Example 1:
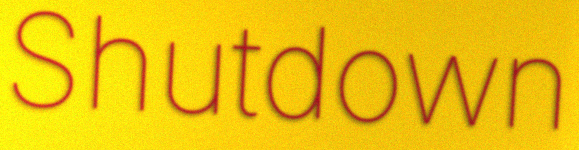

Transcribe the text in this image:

Shutdown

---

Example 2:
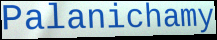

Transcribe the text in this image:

Palanichamy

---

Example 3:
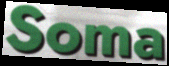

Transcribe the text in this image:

Soma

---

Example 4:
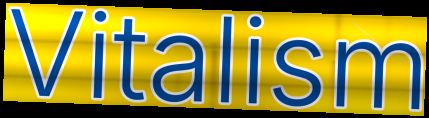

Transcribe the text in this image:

Vitalism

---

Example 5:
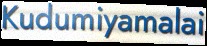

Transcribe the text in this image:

Kudumiyamalai